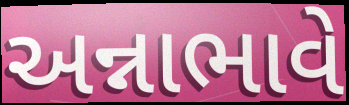
અન્નાભાવે